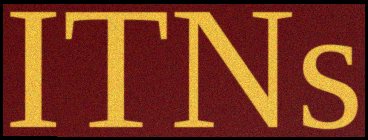
ITNs